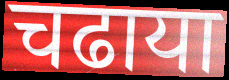
चढाया